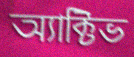
অ্যাক্টিভ